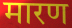
मारण